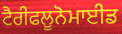
ਟੈਰੀਫਲੂਨੋਮਾਈਡ